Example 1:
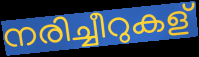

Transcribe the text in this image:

നരിച്ചീറുകള്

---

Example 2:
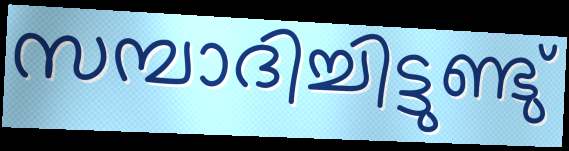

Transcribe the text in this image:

സമ്പാദിച്ചിട്ടുണ്ടു്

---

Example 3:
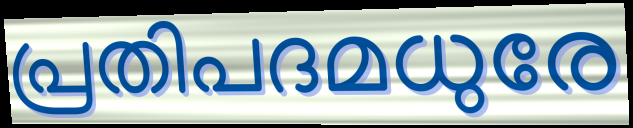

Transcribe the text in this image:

പ്രതിപദമധുരേ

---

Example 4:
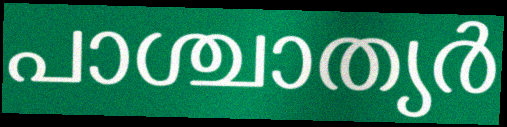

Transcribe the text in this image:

പാശ്ചാത്യർ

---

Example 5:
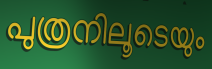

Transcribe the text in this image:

പുത്രനിലൂടെയും